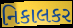
નિકાલકર